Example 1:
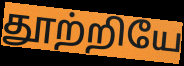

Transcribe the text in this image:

தூற்றியே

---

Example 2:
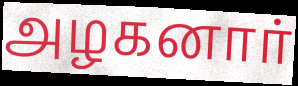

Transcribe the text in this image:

அழகனார்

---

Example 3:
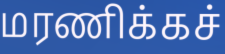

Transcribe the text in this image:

மரணிக்கச்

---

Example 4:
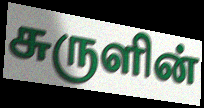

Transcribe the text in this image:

சுருளின்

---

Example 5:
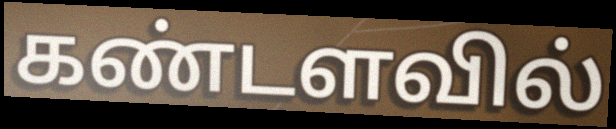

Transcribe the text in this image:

கண்டளவில்